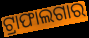
ଟ୍ରାଫାଲଗାର